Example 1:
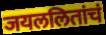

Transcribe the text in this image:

जयललितांचं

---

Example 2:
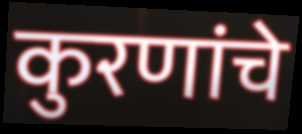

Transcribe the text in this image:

कुरणांचे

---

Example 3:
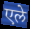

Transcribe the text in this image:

एले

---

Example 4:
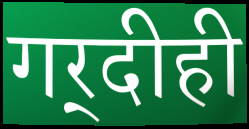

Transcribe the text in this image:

गर्दीही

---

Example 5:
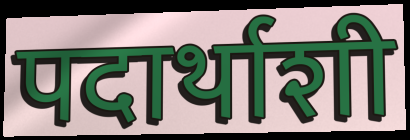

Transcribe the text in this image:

पदार्थाशी